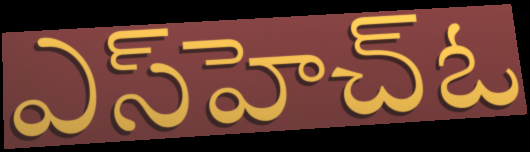
ఎస్‌హెచ్ఓ